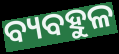
ବ୍ୟବହୁଳ